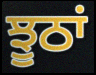
ਝੂਠਾਂ